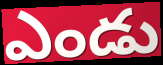
ఎండు